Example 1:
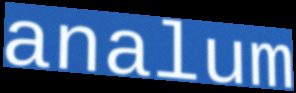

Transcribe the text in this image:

analum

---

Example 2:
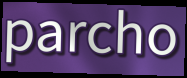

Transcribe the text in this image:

parcho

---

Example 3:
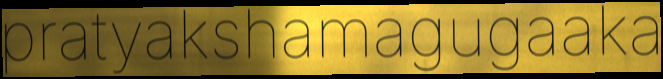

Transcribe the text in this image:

pratyakshamagugaaka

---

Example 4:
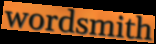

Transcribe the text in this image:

wordsmith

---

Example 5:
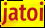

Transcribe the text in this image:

jatoi